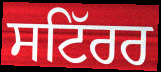
ਸਟਿੱਰਰ